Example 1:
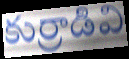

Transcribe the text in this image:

కుర్రాడివి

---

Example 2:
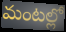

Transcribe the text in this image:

మంటల్లో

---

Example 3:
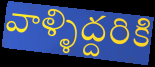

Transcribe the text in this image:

వాళ్ళిద్దరికి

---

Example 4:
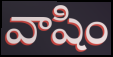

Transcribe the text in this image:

వాషిం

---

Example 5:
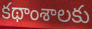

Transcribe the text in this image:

కథాంశాలకు